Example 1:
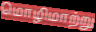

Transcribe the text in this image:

மொழிமாற்று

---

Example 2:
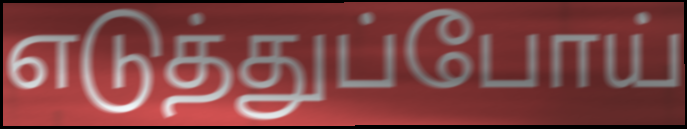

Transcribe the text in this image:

எடுத்துப்போய்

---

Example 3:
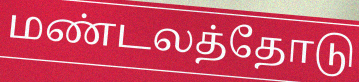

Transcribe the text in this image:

மண்டலத்தோடு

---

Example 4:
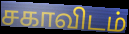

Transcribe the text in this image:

சகாவிடம்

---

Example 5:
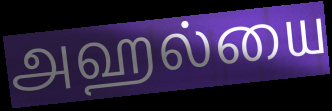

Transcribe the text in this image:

அஹல்யை